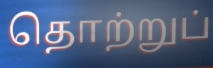
தொற்றுப்